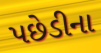
પછેડીના